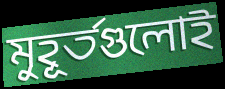
মুহূর্তগুলোই